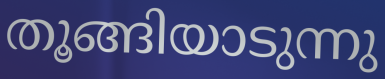
തൂങ്ങിയാടുന്നു